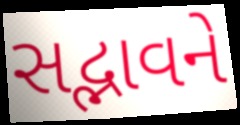
સદ્ભાવને